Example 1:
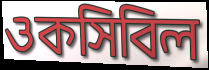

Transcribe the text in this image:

ওকসিবিল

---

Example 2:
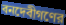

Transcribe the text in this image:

বনদেবীগণের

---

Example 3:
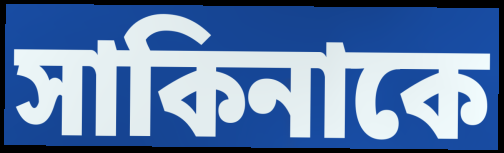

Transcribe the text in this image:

সাকিনাকে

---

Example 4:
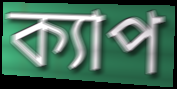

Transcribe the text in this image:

ক্যাপ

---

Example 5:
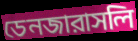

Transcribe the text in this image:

ডেনজারাসলি